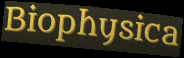
Biophysica